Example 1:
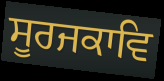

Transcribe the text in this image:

ਸੂਰਜਕਾਵਿ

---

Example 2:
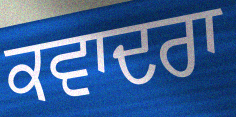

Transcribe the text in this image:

ਕਵਾਦਰਾ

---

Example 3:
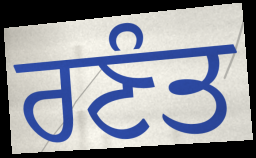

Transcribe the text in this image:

ਰਣੰਤ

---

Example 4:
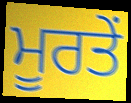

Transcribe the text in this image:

ਮੂਰਤੇਂ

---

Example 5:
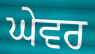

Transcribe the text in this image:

ਘੇਵਰ